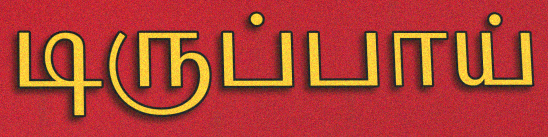
டிருப்பாய்